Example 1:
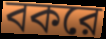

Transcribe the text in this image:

বকরে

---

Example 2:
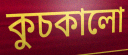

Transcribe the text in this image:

কুচকালো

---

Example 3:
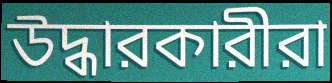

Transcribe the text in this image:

উদ্ধারকারীরা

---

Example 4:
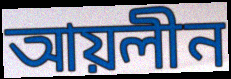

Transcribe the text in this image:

আয়লীন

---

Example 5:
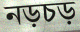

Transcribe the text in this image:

নড়চড়